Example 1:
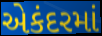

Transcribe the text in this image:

એકંદરમાં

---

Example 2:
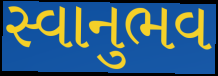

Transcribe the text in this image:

સ્વાનુભવ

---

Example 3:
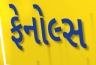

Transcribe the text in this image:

ફેનોલ્સ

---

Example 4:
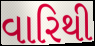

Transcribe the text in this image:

વારિથી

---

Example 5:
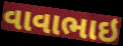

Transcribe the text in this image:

વાવાભાઇ